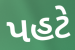
પહટે